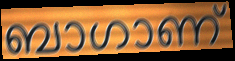
ബാഗാണ്